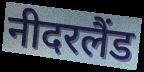
नीदरलैंड